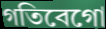
গতিবেগো